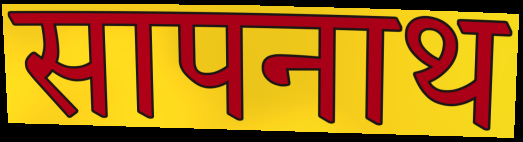
सापनाथ